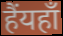
हैंयहाँ